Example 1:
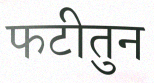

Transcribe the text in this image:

फटीतुन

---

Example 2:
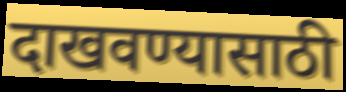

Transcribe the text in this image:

दाखवण्यासाठी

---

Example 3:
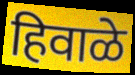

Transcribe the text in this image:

हिवाळे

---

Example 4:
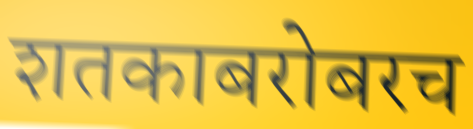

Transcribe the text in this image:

शतकाबरोबरच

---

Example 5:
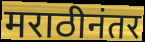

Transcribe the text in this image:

मराठीनंतर